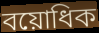
বয়োধিক